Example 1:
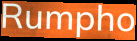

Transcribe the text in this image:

Rumpho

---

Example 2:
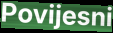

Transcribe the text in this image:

Povijesni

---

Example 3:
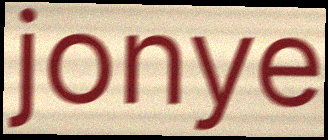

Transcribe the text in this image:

jonye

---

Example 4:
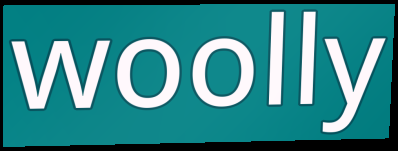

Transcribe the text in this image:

woolly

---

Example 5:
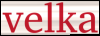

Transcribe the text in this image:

velka